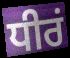
ਧੀਰਂ